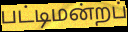
பட்டிமன்றப்